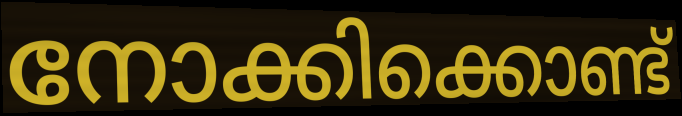
നോക്കിക്കൊണ്ട്